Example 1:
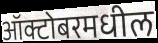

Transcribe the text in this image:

ऑक्टोबरमधील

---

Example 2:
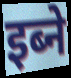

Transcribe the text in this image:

इब्ने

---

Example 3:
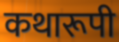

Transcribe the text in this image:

कथारूपी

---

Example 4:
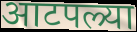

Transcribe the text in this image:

आटपल्या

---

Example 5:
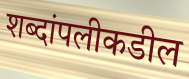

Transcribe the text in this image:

शब्दांपलीकडील